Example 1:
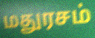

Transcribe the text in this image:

மதுரசம்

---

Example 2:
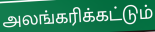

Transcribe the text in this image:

அலங்கரிக்கட்டும்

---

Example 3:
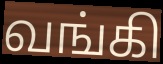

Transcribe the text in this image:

வங்கி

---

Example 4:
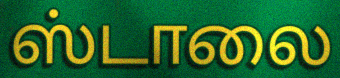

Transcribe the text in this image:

ஸ்டாலை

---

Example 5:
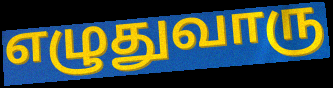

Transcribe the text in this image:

எழுதுவாரு